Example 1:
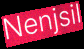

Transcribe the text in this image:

Nenjsil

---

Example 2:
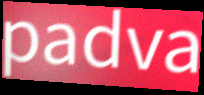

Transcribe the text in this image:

padva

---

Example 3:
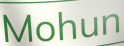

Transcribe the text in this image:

Mohun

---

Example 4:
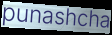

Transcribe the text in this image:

punashcha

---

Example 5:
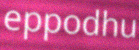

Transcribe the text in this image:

eppodhu